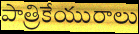
పాత్రికేయురాలు